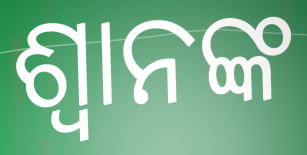
ଶ୍ବାନଙ୍କ